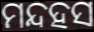
ମନ୍ଦହସ